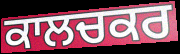
ਕਾਲਚਕਰ